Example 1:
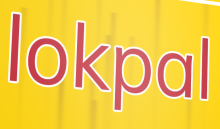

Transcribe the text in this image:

lokpal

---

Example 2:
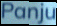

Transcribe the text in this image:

Panju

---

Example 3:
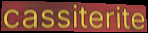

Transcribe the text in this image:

cassiterite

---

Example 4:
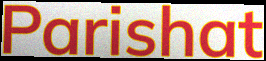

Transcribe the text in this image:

Parishat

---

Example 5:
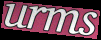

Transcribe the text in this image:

urms